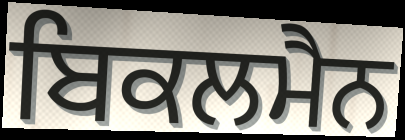
ਬਿਕਲਮੈਨ